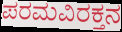
ಪರಮವಿರಕ್ತನ